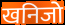
खनिजो